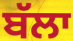
ਬੱਲਾ